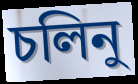
চলিনু